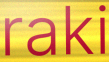
raki